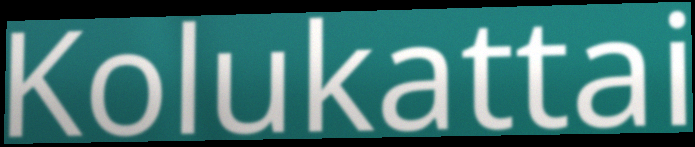
Kolukattai